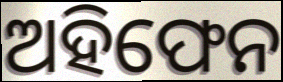
ଅହିଫେନ